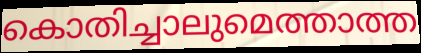
കൊതിച്ചാലുമെത്താത്ത